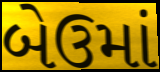
બેઉમાં